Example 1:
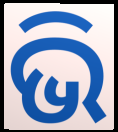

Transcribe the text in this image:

ଭି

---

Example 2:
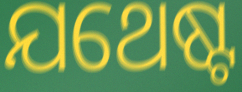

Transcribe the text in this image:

ଯଥେଷ୍ଟ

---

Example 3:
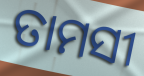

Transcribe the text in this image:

ତାମସୀ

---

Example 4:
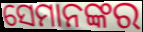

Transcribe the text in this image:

ସେମାନଙ୍କର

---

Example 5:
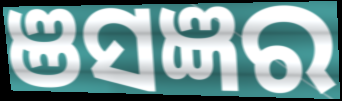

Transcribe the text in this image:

ଞସଜ୍ଞର